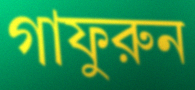
গাফুরুন